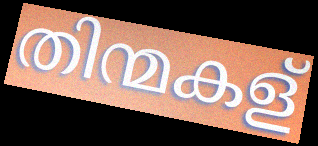
തിന്മകള്